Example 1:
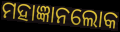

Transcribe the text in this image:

ମହାଜ୍ଞାନଲୋକ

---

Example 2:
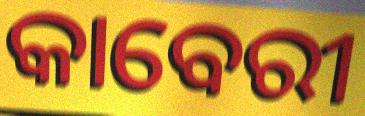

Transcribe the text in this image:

କାବେରୀ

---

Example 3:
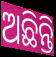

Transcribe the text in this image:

ଅଛିନ୍ତି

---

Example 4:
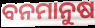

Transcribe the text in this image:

ବନମାନୁଷ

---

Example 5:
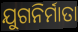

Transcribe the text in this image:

ଯୁଗନିର୍ମାତା